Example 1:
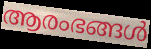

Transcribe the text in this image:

ആരംഭങ്ങൾ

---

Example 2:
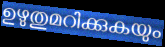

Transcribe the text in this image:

ഉഴുതുമറിക്കുകയും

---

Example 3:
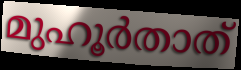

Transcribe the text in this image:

മുഹൂർതാത്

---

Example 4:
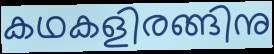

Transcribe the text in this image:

കഥകളിരങ്ങിനു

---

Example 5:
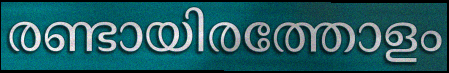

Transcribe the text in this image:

രണ്ടായിരത്തോളം